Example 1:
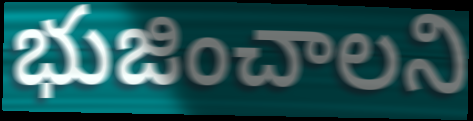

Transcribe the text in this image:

భుజించాలని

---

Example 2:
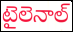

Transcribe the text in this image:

టైలెనాల్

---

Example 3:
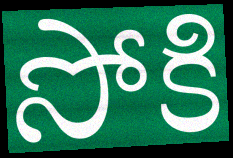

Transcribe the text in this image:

సోకి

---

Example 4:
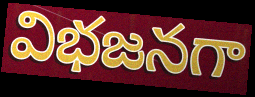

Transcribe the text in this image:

విభజనగా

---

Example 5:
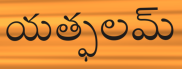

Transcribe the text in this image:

యత్ఫలమ్